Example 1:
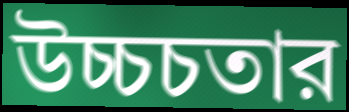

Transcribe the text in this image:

উচ্চচতার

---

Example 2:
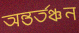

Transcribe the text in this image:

অন্তর্তঞ্চন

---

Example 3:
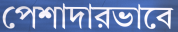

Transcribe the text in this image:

পেশাদারভাবে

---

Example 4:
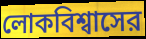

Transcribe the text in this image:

লোকবিশ্বাসের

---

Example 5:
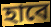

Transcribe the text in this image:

হাবে